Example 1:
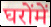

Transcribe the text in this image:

घरोंमें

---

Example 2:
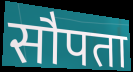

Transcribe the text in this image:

सौपता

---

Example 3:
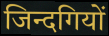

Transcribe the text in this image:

जिन्दगियों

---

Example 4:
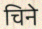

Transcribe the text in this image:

चिने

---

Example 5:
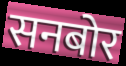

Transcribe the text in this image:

सनबोर